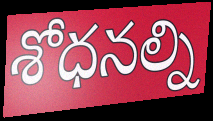
శోధనల్ని